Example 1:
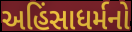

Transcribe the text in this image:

અહિંસાધર્મનો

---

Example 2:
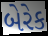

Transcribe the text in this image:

બેરેક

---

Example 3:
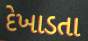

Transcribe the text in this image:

દેખાડતા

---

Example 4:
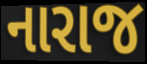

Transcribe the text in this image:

નારાજ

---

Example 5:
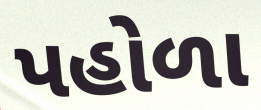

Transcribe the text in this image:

પહોળા